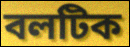
বলটিক